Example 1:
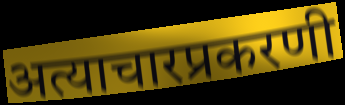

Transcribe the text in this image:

अत्याचारप्रकरणी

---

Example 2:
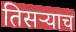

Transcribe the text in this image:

तिसऱ्याच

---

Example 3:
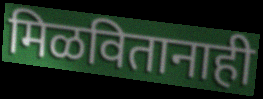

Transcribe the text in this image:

मिळवितानाही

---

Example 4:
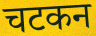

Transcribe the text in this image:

चटकन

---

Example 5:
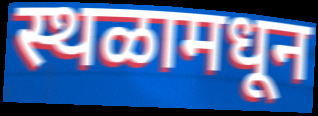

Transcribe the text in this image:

स्थळामधून